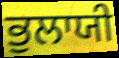
ਭੁਲਾਯੀ